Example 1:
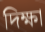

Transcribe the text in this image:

দিক্ষা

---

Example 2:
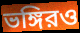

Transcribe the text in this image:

ভঙ্গিরও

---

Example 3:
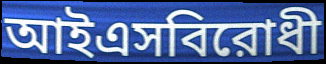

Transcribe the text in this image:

আইএসবিরোধী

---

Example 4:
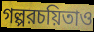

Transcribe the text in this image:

গল্পরচয়িতাও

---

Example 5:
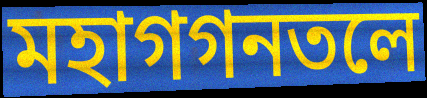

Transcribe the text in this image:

মহাগগনতলে